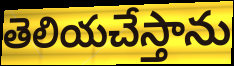
తెలియచేస్తాను